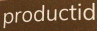
productid